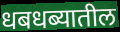
धबधब्यातील